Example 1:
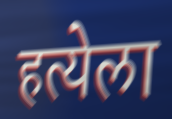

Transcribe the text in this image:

हत्येला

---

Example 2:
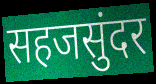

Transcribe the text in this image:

सहजसुंदर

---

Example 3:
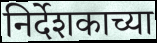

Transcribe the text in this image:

निर्देशकाच्या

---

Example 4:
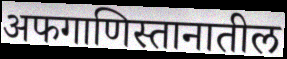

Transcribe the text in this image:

अफगाणिस्तानातील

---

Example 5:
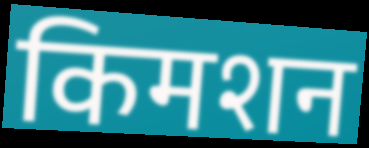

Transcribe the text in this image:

किमशन